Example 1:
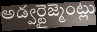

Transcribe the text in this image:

అడ్వర్టైజ్మెంట్లు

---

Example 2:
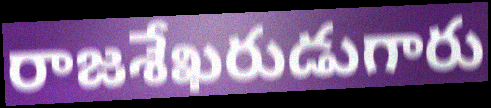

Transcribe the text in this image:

రాజశేఖరుడుగారు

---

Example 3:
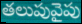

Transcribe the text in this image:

తలుపువైపు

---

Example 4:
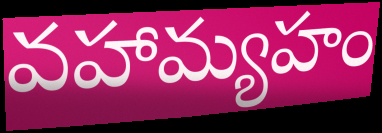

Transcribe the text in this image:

వహామ్యహం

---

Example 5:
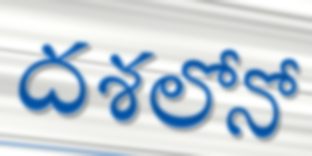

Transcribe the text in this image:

దశలోనో